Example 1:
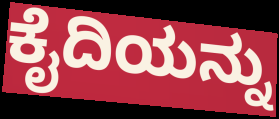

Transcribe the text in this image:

ಕೈದಿಯನ್ನು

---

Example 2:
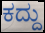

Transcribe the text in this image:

ಕದ್ದು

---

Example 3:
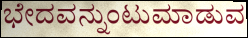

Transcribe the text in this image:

ಭೇದವನ್ನುಂಟುಮಾಡುವ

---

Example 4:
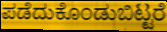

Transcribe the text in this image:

ಪಡೆದುಕೊಂಡುಬಿಟ್ಟರೆ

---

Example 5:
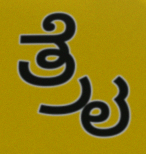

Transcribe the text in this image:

ತ್ರೈ